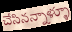
చేసినన్నాళ్ళూ